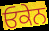
ਓਕੇਨ